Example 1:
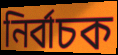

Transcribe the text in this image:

নির্বাচক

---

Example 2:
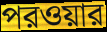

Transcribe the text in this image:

পরওয়ার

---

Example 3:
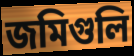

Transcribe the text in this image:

জমিগুলি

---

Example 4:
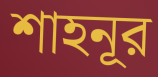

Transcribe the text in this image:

শাহনূর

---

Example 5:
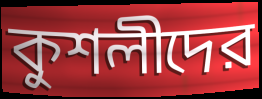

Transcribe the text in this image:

কুশলীদের